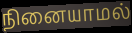
நினையாமல்